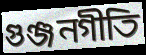
গুঞ্জনগীতি